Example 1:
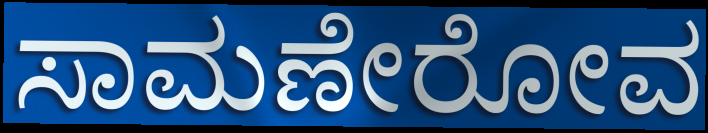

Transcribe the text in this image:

ಸಾಮಣೇರೋವ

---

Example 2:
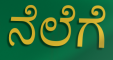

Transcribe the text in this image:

ನೆಲೆಗೆ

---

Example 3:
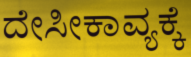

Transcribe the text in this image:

ದೇಸೀಕಾವ್ಯಕ್ಕೆ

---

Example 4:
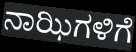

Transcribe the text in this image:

ನಾಝಿಗಳಿಗೆ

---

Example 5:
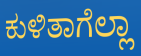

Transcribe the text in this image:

ಕುಳಿತಾಗೆಲ್ಲಾ